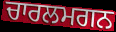
ਚਾਰਲਮਗਨ